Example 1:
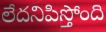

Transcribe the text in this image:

లేదనిపిస్తోంది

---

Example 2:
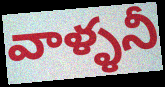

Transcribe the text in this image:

వాళ్ళనీ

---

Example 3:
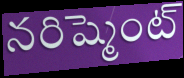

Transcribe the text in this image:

నరిష్మెంట్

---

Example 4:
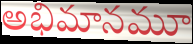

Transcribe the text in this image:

అభిమానమూ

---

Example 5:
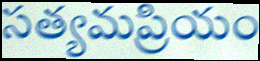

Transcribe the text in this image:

సత్యమప్రియం